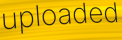
uploaded